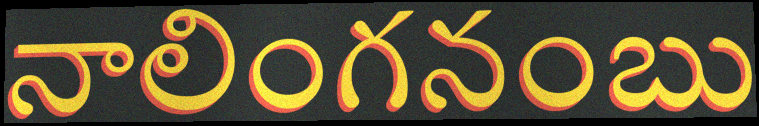
నాలింగనంబు